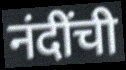
नंदींची